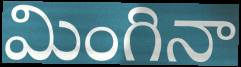
మింగినా